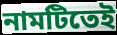
নামটিতেই